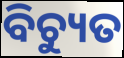
ବିଚ୍ୟୁତ